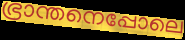
ഭ്രാന്തനെപ്പോലെ